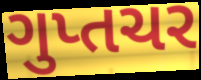
ગુપ્તચર